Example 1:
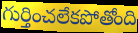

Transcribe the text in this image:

గుర్తించలేకపోతోంది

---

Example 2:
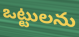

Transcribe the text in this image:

ఒట్టులను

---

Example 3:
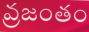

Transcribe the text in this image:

వ్రజంతం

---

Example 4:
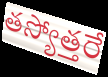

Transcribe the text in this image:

తస్యోత్తరే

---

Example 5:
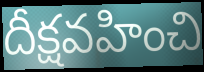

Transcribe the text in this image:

దీక్షవహించి